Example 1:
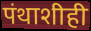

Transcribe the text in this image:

पंथाशीही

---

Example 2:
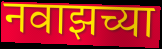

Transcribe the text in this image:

नवाझच्या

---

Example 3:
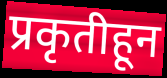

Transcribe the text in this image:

प्रकृतीहून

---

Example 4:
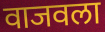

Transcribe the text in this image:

वाजवला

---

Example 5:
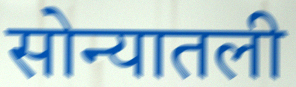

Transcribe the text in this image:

सोन्यातली